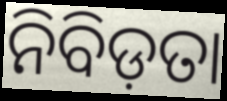
ନିବିଡ଼ତା